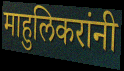
माहुलिकरांनी